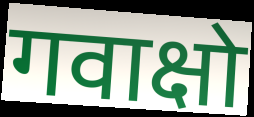
गवाक्षो